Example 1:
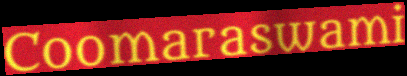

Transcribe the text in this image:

Coomaraswami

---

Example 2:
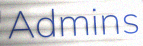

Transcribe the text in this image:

Admins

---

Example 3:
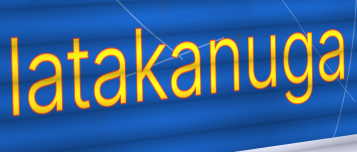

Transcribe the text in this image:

latakanuga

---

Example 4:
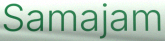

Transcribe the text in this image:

Samajam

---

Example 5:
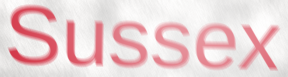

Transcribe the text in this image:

Sussex